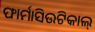
ଫାର୍ମାସିଉଟିକାଲ୍